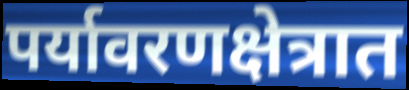
पर्यावरणक्षेत्रात